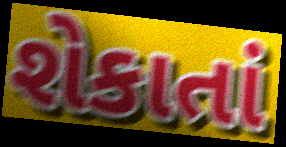
શેકાતાં